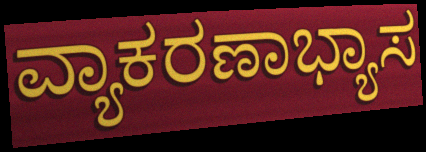
ವ್ಯಾಕರಣಾಭ್ಯಾಸ